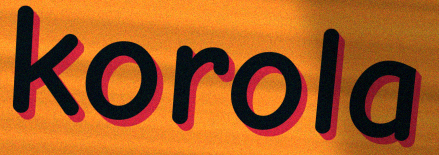
korola